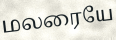
மலரையே